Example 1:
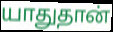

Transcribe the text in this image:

யாதுதான்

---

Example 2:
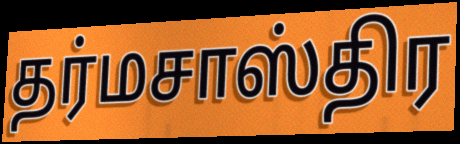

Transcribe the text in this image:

தர்மசாஸ்திர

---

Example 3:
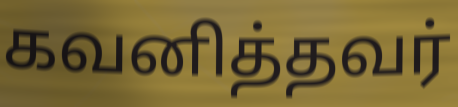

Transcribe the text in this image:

கவனித்தவர்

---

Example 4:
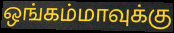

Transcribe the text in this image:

ஒங்கம்மாவுக்கு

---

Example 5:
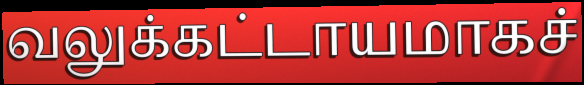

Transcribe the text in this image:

வலுக்கட்டாயமாகச்